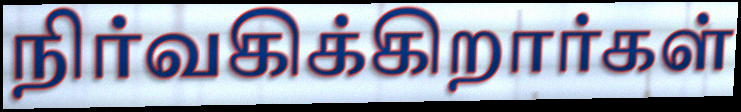
நிர்வகிக்கிறார்கள்